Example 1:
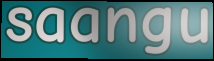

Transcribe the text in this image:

saangu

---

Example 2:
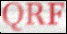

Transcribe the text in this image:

QRF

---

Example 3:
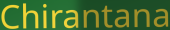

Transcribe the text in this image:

Chirantana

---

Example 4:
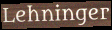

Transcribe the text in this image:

Lehninger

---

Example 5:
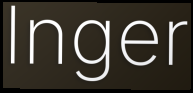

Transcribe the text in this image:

Inger